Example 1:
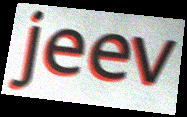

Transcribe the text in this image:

jeev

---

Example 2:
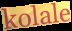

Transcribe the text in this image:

kolale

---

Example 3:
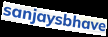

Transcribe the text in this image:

sanjaysbhave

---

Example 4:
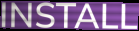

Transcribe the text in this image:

INSTALL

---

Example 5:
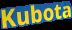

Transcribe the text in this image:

Kubota